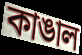
কাঙাল